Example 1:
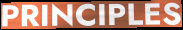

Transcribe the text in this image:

PRINCIPLES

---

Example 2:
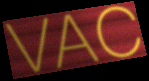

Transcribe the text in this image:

VAC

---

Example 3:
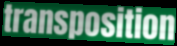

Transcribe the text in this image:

transposition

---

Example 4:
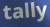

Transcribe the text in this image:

tally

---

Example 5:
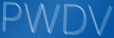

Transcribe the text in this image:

PWDV